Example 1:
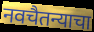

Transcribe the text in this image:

नवचैतन्याचा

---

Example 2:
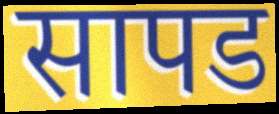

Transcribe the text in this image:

सापड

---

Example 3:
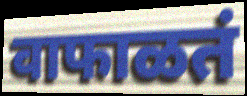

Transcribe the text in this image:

वाफाळतं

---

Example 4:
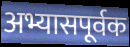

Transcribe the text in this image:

अभ्यासपूर्वक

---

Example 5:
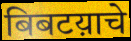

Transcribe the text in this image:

बिबटय़ाचे